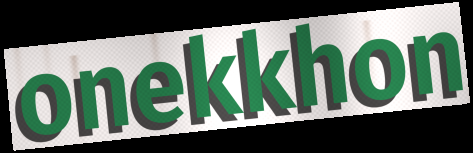
onekkhon